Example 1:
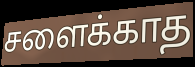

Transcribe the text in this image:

சளைக்காத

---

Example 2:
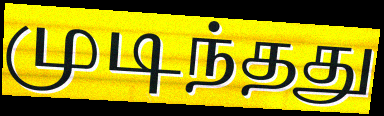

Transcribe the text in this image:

முடிந்தது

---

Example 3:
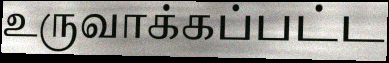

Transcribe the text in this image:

உருவாக்கப்பட்ட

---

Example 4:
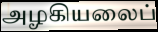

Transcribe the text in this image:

அழகியலைப்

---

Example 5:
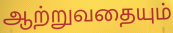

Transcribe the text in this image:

ஆற்றுவதையும்